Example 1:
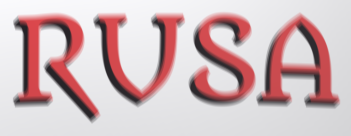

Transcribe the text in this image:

RUSA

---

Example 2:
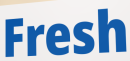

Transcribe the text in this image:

Fresh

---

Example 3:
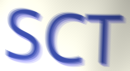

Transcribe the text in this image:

SCT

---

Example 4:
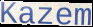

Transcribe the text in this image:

Kazem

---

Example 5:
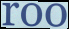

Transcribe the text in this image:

roo